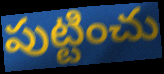
పుట్టించు